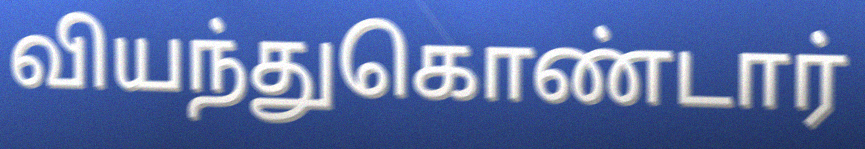
வியந்துகொண்டார்